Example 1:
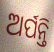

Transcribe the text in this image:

ଅର୍ପନ୍ତି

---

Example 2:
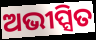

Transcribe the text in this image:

ଅଭୀପ୍ସିତ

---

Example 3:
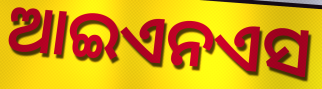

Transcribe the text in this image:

ଆଇଏନଏସ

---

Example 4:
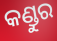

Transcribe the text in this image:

କଣ୍ଡୁର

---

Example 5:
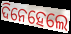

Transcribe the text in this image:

ଦିନେହେଲେ